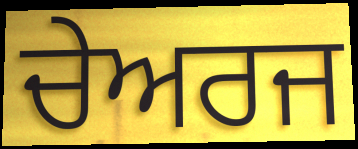
ਚੇਅਰਜ